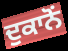
ਦੁਕਾਨੋਂ